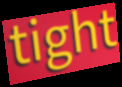
tight